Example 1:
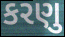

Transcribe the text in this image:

કરણુ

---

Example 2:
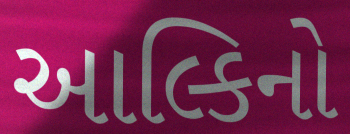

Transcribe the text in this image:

આલ્કિનો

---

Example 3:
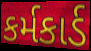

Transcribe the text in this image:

કર્મકાર્ડ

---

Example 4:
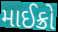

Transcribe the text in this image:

માઈક્રો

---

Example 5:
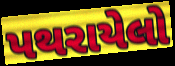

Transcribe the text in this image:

પથરાયેલો